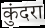
कुंदरा